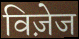
विज़ेज